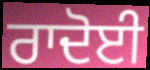
ਰਾਦੋਈ